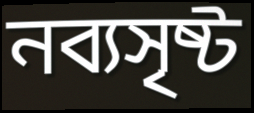
নব্যসৃষ্ট